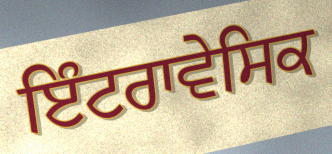
ਇੰਟਰਾਵੇਸਿਕ